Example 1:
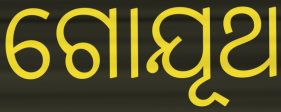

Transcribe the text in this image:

ଗୋଯୂଥ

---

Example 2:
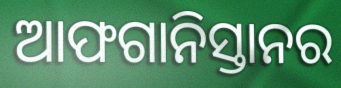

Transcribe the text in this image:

ଆଫଗାନିସ୍ତାନର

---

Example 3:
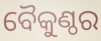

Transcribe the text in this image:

ବୈକୁଣ୍ଠର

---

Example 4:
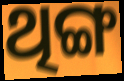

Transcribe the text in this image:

ଥିଙ୍ଗ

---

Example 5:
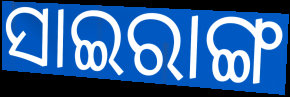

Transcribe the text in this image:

ସାଇରାଙ୍ଗ